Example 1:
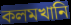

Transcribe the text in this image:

কলমখানি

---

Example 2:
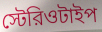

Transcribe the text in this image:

স্টেরিওটাইপ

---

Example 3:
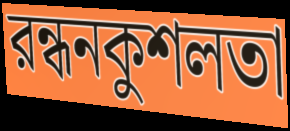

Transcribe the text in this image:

রন্ধনকুশলতা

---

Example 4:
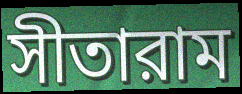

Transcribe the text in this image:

সীতারাম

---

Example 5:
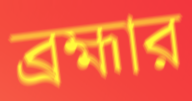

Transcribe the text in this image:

ব্রহ্মার